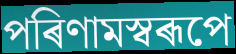
পৰিণামস্বৰূপে